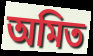
অমিত